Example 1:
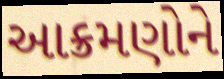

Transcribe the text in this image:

આક્રમણોને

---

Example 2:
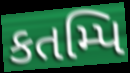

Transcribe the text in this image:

કતમ્પિ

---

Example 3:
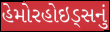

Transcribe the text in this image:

હેમોરહોઇડ્સનું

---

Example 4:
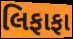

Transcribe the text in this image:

લિફાફા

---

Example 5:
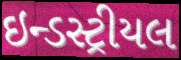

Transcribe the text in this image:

ઇન્ડસ્ટ્રીયલ